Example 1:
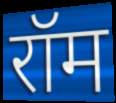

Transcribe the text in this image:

रॉम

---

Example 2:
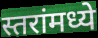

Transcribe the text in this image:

स्तरांमध्ये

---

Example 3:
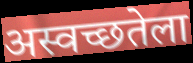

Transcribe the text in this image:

अस्वच्छतेला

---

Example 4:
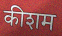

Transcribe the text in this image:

कीशम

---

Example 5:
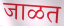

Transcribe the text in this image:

जाळत